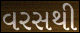
વરસથી